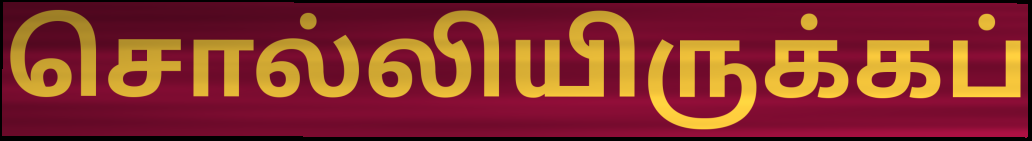
சொல்லியிருக்கப்